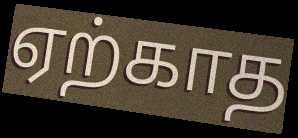
ஏற்காத